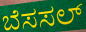
ಬೆಸಸಲ್